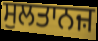
ਸੁਲਤਾਨਜ਼